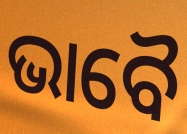
ଭାବୈ